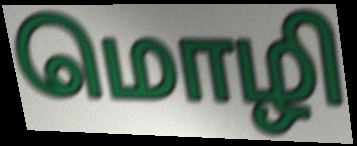
மொழி